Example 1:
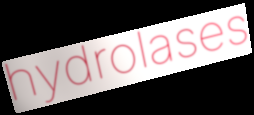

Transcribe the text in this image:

hydrolases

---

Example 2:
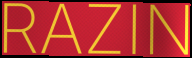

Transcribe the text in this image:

RAZIN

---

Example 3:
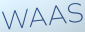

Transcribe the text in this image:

WAAS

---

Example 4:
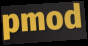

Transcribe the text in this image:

pmod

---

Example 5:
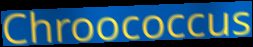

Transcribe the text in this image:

Chroococcus